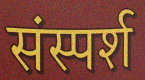
संस्पर्श